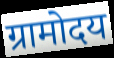
ग्रामोदय